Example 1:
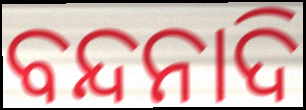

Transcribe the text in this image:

ବନ୍ଦନାଦି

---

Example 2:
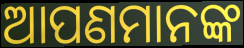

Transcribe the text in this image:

ଆପଣମାନଙ୍କ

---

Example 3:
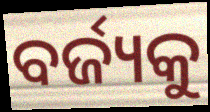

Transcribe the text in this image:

ବର୍ଜ୍ୟକୁ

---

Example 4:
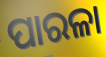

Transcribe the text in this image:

ପାରଳା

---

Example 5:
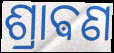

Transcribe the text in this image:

ଶ୍ରାଵଣ